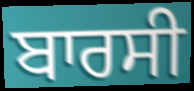
ਬਾਰਸੀ